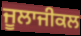
ਜੂਲਾਜੀਕਲ